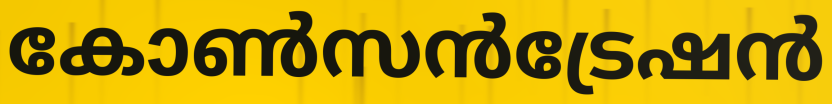
കോൺസൻട്രേഷൻ